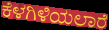
ಕೆಳಗಿಳಿಯಲಾರೆ